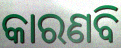
କାରଣବି